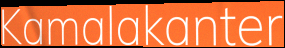
Kamalakanter